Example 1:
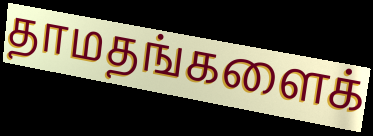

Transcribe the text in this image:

தாமதங்களைக்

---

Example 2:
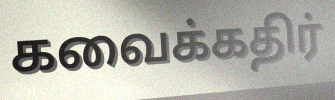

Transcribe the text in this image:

கவைக்கதிர்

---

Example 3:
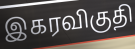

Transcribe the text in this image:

இகரவிகுதி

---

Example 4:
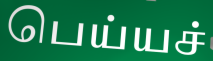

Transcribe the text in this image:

பெய்யச்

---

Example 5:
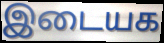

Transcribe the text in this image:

இடையக